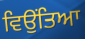
ਵਿਉਂਤਿਆ